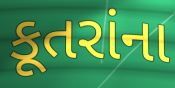
કૂતરાંના